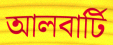
আলবার্টি